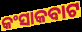
କଂସାକବାଟ